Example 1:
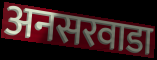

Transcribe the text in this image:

अनसरवाडा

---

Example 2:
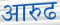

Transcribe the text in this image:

आरुढ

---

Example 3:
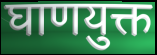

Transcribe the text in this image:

घाणयुक्त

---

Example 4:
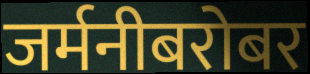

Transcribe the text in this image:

जर्मनीबरोबर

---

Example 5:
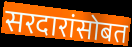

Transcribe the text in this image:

सरदारांसोबत